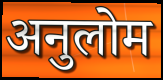
अनुलोम